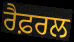
ਰੈਫ਼ਰਲ